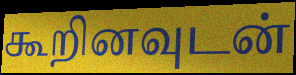
கூறினவுடன்